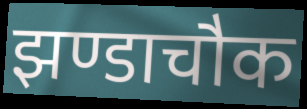
झण्डाचौक